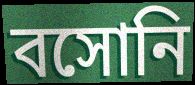
বসোনি